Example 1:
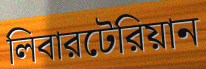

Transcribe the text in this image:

লিবারটেরিয়ান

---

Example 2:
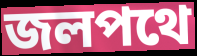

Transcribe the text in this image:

জলপথে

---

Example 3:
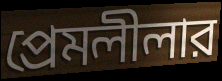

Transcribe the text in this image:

প্রেমলীলার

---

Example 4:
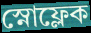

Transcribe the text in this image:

স্নোফ্লেক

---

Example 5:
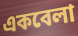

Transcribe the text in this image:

একবেলা